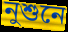
নুশুনে